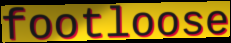
footloose